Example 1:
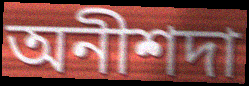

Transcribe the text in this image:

অনীশদা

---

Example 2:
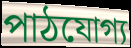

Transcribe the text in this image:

পাঠযোগ্য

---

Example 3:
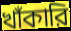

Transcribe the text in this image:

খাঁকারি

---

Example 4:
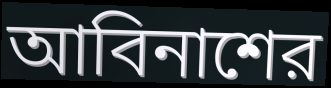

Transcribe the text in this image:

আবিনাশের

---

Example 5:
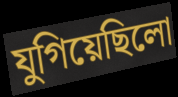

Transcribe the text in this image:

যুগিয়েছিলো